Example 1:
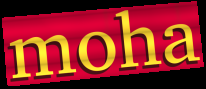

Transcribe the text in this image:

moha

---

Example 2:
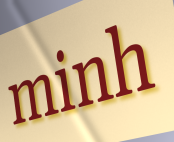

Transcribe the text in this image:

minh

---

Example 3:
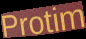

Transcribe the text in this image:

Protim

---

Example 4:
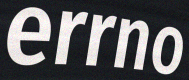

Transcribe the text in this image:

errno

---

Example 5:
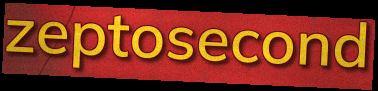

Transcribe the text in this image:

zeptosecond